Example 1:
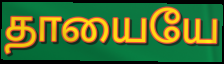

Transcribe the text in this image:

தாயையே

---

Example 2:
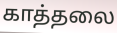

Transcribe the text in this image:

காத்தலை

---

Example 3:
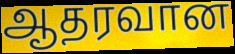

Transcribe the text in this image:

ஆதரவான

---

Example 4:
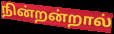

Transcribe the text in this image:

நின்றன்றால்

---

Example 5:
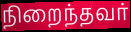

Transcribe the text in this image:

நிறைந்தவர்